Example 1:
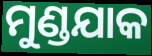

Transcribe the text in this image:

ମୁଣ୍ଡଯାକ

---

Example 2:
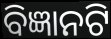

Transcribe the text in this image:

ବିଜ୍ଞାନଟି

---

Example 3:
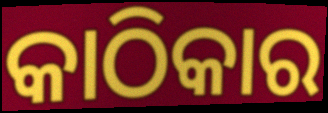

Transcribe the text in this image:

କାଠିକାର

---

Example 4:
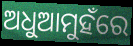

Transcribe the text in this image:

ଅଧୁଆମୁହଁରେ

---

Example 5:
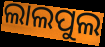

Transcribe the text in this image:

ଲାଲପୁଲ